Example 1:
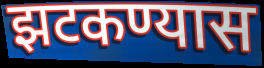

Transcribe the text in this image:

झटकण्यास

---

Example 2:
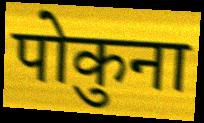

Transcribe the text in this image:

पोकुना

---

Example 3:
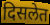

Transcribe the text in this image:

दिसलेत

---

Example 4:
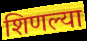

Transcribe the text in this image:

शिणल्या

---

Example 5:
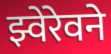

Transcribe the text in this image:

झ्वेरेवने